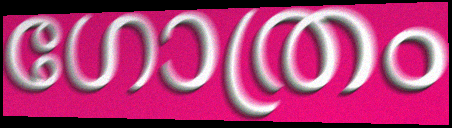
ഗോത്രം